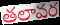
తలావర